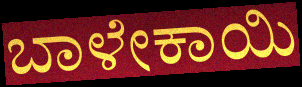
ಬಾಳೇಕಾಯಿ